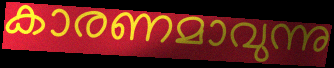
കാരണമാവുന്നു